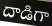
దాడిగా